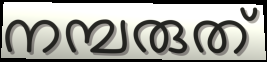
നമ്പരുത്